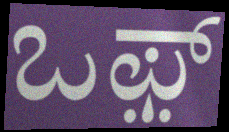
ಒಫ಼್